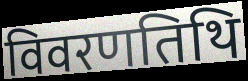
विवरणतिथि